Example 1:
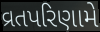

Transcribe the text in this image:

વ્રતપરિણામે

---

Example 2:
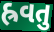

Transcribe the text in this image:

હ્રવતુ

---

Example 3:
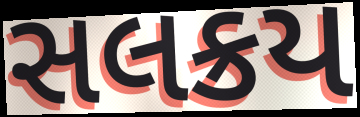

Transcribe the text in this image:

સલક્રય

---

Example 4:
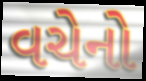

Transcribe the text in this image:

વચેનો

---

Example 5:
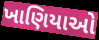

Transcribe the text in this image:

ખાણિયાઓ